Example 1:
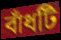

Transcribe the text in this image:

বাঁধটি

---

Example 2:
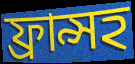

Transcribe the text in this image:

ফ্রান্সহ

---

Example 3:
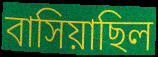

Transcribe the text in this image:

বাসিয়াছিল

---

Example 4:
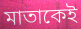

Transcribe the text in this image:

মাতাকেই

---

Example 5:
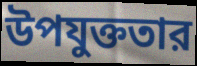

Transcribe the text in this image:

উপযুক্ততার